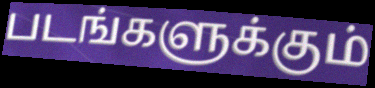
படங்களுக்கும்